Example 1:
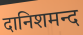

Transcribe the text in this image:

दानिशमन्द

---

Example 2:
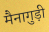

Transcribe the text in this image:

मैनागुड़ी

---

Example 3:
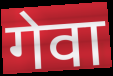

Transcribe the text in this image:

गेवा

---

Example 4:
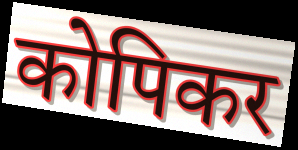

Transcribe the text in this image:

कोपिकर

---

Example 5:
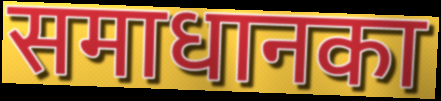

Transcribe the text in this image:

समाधानका